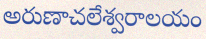
అరుణాచలేశ్వరాలయం